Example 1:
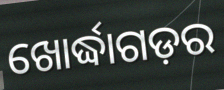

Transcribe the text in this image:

ଖୋର୍ଦ୍ଧାଗଡ଼ର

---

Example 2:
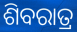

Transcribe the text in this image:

ଶିବରାତ୍ର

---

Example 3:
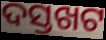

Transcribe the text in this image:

ଦସ୍ତଖଟ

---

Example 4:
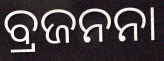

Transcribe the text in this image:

ବ୍ରଜନନା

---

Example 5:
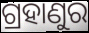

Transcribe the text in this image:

ଗ୍ରହାଣୁର